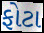
ફોટા